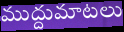
ముద్దుమాటలు